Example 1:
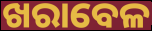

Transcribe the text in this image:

ଖରାବେଳ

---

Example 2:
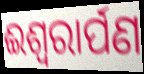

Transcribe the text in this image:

ଈଶ୍ୱରାର୍ପଣ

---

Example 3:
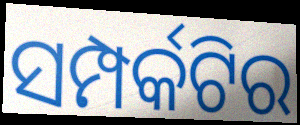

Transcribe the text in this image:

ସମ୍ପର୍କଟିର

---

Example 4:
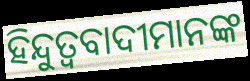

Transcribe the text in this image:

ହିନ୍ଦୁତ୍ଵବାଦୀମାନଙ୍କ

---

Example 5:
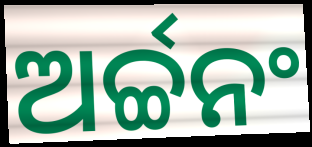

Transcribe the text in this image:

ଅର୍ଚ୍ଚନଂ